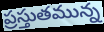
ప్రస్తుతమున్న